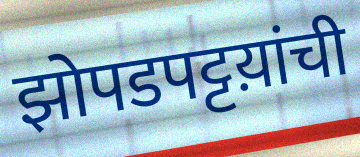
झोपडपट्टय़ांची